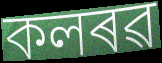
কলৰৱ